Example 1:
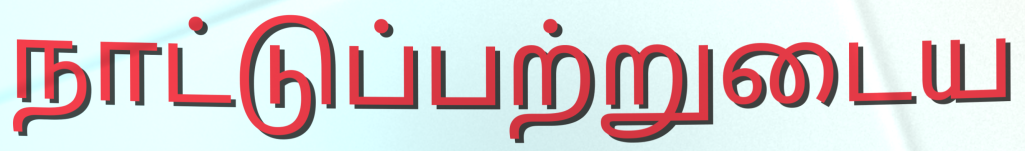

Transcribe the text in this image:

நாட்டுப்பற்றுடைய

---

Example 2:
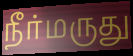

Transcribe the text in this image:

நீர்மருது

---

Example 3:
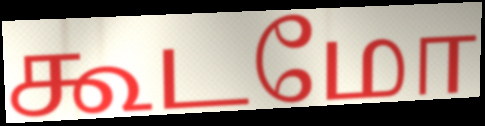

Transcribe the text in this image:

கூடமோ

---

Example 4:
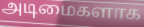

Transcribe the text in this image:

அடிமைகளாக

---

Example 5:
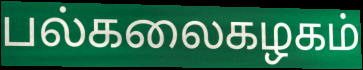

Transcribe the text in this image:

பல்கலைகழகம்